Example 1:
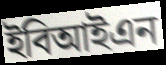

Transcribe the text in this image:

ইবিআইএন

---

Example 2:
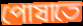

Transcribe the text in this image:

পোষাতে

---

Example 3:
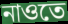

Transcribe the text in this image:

নাওতে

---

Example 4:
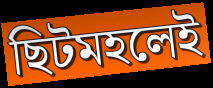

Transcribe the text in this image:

ছিটমহলেই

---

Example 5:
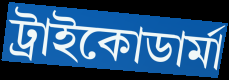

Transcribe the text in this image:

ট্রাইকোডার্মা